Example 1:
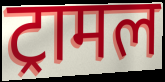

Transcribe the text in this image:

ट्रामल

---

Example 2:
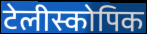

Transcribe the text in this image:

टेलीस्कोपिक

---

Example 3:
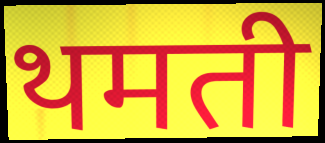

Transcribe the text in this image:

थमती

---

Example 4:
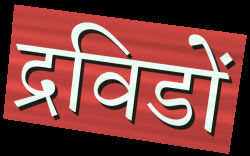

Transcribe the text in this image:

द्रविडों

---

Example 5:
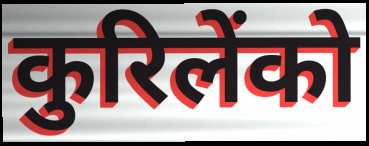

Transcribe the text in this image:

कुरिलेंको